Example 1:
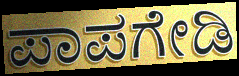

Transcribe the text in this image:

ಪಾಪಗೇಡಿ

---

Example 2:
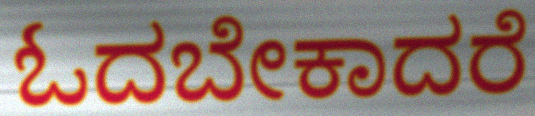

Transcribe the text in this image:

ಓದಬೇಕಾದರೆ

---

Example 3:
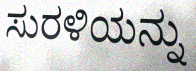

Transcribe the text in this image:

ಸುರಳಿಯನ್ನು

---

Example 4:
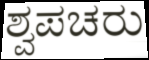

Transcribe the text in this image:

ಶ್ವಪಚರು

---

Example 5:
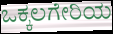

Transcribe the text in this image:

ಒಕ್ಕಲಗೇರಿಯ